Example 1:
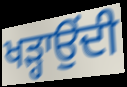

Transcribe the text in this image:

ਖੜ੍ਹਾਉਂਦੀ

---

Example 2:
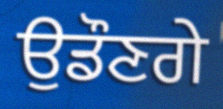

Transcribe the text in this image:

ਉਡੌਣਗੇ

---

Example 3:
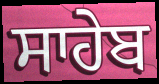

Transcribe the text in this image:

ਸਾਹੇਬ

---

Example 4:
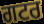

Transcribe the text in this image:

ਗਟਰ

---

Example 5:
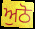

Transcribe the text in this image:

ਅੁਠੋ